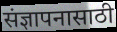
संज्ञापनासाठी